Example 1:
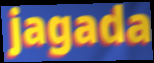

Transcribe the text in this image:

jagada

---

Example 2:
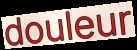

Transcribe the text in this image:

douleur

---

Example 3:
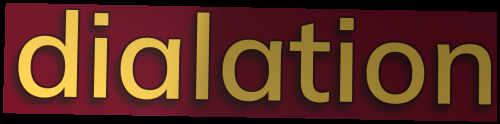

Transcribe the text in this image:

dialation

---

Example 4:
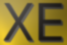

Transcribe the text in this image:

XE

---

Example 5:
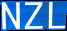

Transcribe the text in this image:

NZL